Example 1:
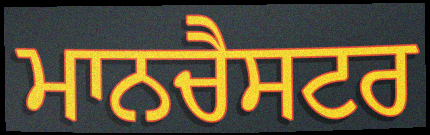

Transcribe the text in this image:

ਮਾਨਚੈਸਟਰ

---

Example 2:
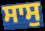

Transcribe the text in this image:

ਸਾਸੁ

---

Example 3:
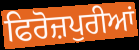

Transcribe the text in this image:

ਫਿਰੋਜ਼ਪੁਰੀਆਂ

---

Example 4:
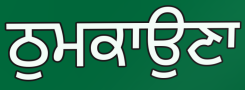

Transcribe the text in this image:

ਠੁਮਕਾਉਣਾ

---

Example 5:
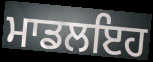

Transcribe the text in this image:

ਮਾਡਲਇਹ